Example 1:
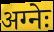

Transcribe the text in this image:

अग्नेः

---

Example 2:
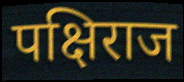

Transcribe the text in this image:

पक्षिराज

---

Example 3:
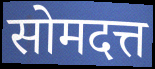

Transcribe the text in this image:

सोमदत्त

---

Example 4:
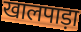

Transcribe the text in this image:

खालपाड़ा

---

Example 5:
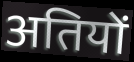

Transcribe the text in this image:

अतियों